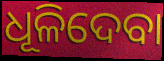
ଧୂଳିଦେବା